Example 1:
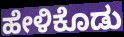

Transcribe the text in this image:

ಹೇಳಿಕೊಡು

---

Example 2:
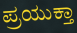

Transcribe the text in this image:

ಪ್ರಯುಕ್ತಾ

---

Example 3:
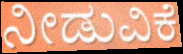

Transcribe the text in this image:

ನೀಡುವಿಕೆ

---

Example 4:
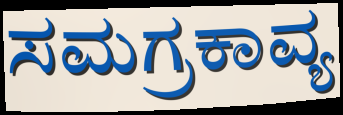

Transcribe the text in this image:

ಸಮಗ್ರಕಾವ್ಯ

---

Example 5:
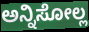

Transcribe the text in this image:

ಅನ್ನಿಸೋಲ್ಲ